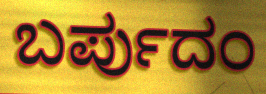
ಬರ್ಪುದಂ